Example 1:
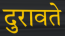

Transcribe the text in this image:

दुरावते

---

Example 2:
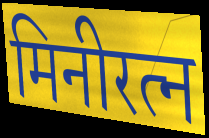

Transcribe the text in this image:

मिनीरत्न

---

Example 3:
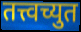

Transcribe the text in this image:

तत्त्वच्युत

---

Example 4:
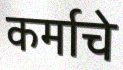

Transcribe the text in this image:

कर्माचे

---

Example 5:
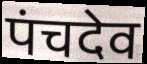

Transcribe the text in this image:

पंचदेव